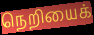
நெறியைக்